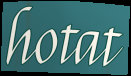
hotat